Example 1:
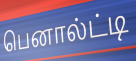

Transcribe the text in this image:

பெனால்ட்டி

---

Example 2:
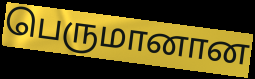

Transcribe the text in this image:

பெருமானான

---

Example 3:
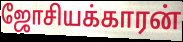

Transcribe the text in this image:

ஜோசியக்காரன்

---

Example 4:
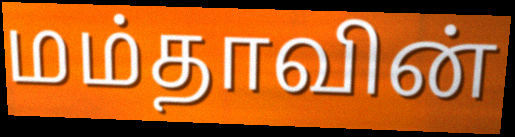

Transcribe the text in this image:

மம்தாவின்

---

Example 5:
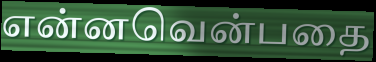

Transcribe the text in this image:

என்னவென்பதை